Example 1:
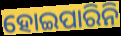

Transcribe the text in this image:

ହୋଇପାରିନି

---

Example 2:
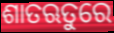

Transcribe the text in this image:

ଶାତଋତୁରେ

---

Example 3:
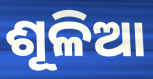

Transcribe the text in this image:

ଶୂଳିଆ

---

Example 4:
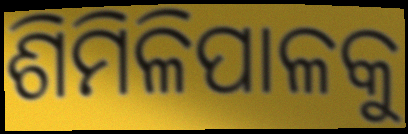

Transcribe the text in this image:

ଶିମିଳିପାଳକୁ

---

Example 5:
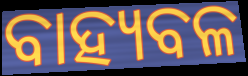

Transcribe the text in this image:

ବାହ୍ୟବଳ